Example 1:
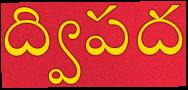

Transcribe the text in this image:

ద్విపద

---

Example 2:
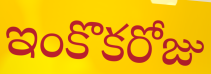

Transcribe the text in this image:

ఇంకొకరోజు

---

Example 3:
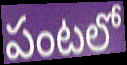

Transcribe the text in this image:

పంటలో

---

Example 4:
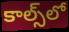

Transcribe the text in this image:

కాల్స్‌లో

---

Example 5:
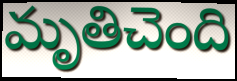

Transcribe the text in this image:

మృతిచెంది